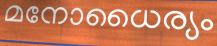
മനോധൈര്യം